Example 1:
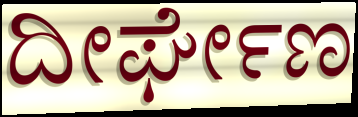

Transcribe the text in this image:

ದೀರ್ಘೇಣ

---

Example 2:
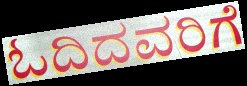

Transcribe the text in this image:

ಓದಿದವರಿಗೆ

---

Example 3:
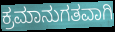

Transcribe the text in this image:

ಕ್ರಮಾನುಗತವಾಗಿ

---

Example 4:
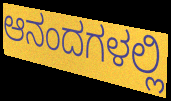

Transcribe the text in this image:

ಆನಂದಗಳಲ್ಲಿ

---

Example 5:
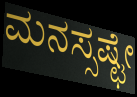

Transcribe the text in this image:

ಮನಸ್ಸಷ್ಟೇ